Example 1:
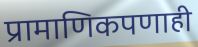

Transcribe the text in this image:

प्रामाणिकपणाही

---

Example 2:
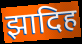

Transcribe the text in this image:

झादिह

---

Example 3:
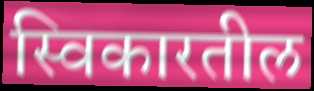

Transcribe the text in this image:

स्विकारतील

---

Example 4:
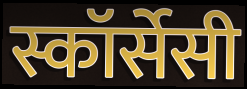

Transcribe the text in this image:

स्कॉर्सेसी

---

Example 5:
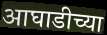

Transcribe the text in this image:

आघाडीच्या